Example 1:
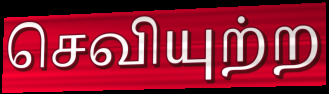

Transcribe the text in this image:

செவியுற்ற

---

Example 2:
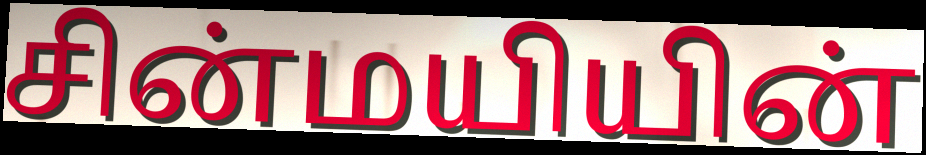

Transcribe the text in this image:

சின்மயியின்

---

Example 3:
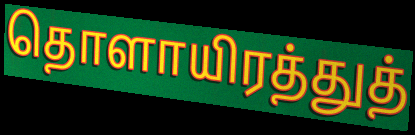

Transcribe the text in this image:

தொளாயிரத்துத்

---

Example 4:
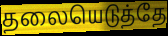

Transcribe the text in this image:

தலையெடுத்தே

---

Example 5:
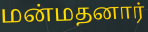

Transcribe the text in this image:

மன்மதனார்